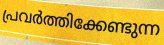
പ്രവർത്തിക്കേണ്ടുന്ന